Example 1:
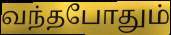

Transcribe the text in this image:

வந்தபோதும்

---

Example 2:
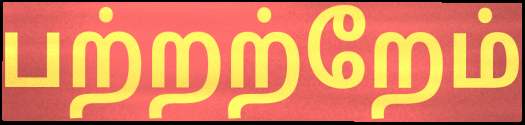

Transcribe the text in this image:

பற்றற்றேம்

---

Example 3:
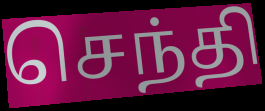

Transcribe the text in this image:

செந்தி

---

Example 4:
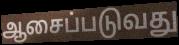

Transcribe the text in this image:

ஆசைப்படுவது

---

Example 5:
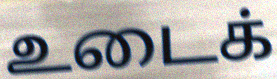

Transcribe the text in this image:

உடைக்